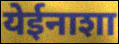
येईनाशा